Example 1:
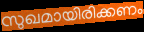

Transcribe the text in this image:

സുഖമായിരിക്കണം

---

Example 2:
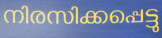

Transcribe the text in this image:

നിരസിക്കപ്പെട്ടു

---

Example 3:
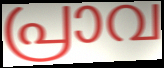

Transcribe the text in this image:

പ്രാവ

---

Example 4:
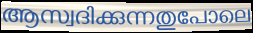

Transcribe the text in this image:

ആസ്വദിക്കുന്നതുപോലെ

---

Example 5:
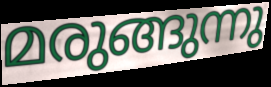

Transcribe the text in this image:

മരുങ്ങുന്നു